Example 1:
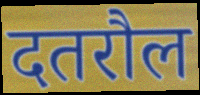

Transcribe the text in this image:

दतरौल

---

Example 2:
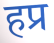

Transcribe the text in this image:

हप्र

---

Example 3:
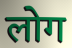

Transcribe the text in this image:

लोग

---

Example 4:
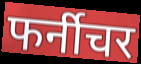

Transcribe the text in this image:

फर्नीचर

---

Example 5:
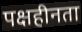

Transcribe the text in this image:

पक्षहीनता